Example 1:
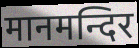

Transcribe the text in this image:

मानमन्दिर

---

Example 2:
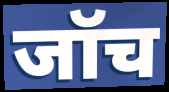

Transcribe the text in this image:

जॉच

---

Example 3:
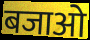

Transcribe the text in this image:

बजाओ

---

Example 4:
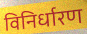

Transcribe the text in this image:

विनिर्धारण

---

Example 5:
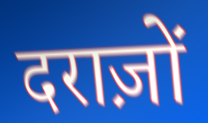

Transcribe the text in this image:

दराज़ों